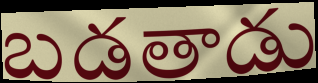
బడతాడు